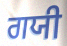
ਗਯੀ